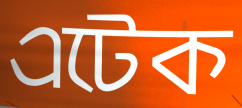
এটেক